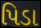
પિડા